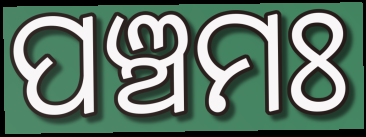
ପଞ୍ଚମଃ